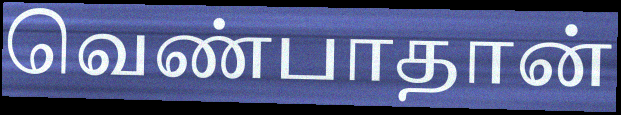
வெண்பாதான்